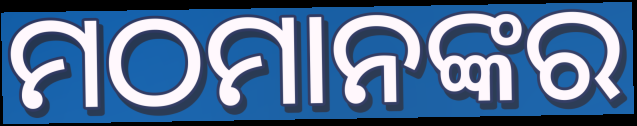
ମଠମାନଙ୍କର